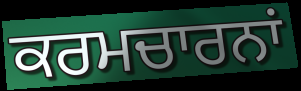
ਕਰਮਚਾਰਨਾਂ